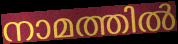
നാമത്തിൽ